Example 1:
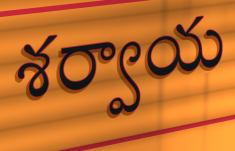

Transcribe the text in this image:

శర్వాయ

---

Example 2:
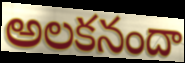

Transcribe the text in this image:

అలకనందా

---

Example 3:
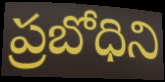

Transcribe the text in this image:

ప్రబోధిని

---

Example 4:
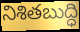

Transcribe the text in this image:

నిశితబుద్ధి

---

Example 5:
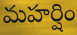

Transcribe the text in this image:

మహర్షిం